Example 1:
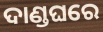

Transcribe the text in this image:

ଦାଣ୍ଡଘରେ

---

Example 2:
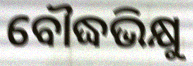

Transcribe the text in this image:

ବୌଦ୍ଧଭିକ୍ଷୁ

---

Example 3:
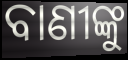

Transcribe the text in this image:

ବାଣୀଙ୍କୁ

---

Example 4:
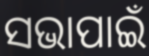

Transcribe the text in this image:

ସଭାପାଇଁ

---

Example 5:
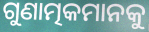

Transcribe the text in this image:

ଗୁଣାତ୍ମକମାନକୁ